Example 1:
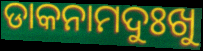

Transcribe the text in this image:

ଡାକନାମଦୁଃଖୁ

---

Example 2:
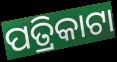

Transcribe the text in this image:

ପତ୍ରିକାଟା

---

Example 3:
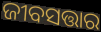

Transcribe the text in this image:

ଜୀବସତ୍ତାର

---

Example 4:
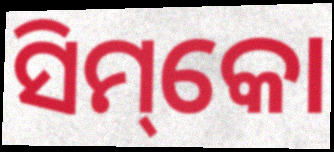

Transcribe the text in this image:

ସିମ୍‌କୋ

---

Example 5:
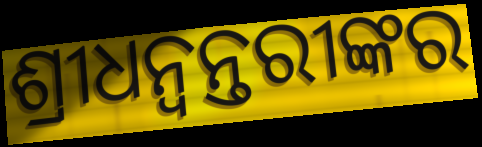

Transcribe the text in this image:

ଶ୍ରୀଧନ୍ୱନ୍ତରୀଙ୍କର